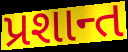
પ્રશાન્ત